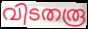
വിടതരൂ